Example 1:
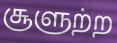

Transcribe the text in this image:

சூளுற்ற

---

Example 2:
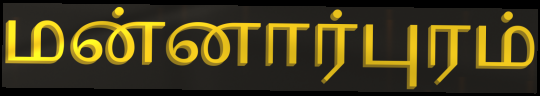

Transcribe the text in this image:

மன்னார்புரம்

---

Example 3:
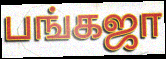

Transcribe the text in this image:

பங்கஜா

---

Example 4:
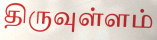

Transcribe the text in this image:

திருவுள்ளம்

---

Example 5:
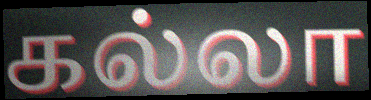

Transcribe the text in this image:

கல்லா